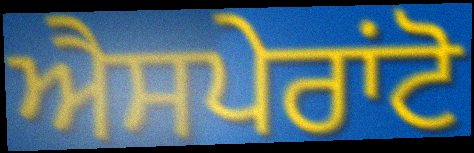
ਐਸਪੇਰਾਂਟੋ